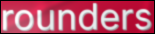
rounders